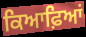
ਕਿਆਫ਼ਿਆਂ